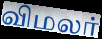
விமலர்